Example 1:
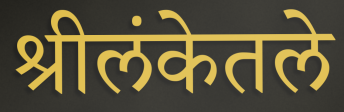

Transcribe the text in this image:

श्रीलंकेतले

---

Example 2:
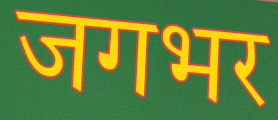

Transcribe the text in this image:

जगभर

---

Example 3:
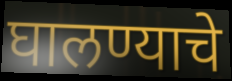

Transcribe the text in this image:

घालण्याचे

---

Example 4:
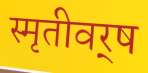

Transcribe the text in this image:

स्मृतीवर्ष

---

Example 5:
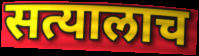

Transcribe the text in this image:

सत्यालाच